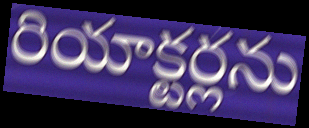
రియాక్టర్లను